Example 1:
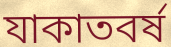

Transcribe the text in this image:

যাকাতবর্ষ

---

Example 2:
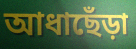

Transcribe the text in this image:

আধাছেঁড়া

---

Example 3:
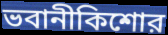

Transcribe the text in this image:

ভবানীকিশোর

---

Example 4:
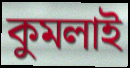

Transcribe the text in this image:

কুমলাই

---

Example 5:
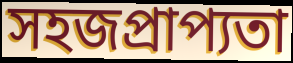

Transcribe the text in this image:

সহজপ্রাপ্যতা